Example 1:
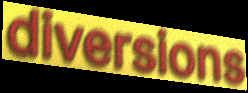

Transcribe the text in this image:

diversions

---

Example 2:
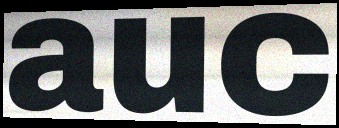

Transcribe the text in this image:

auc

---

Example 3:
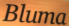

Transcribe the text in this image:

Bluma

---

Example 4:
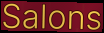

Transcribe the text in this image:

Salons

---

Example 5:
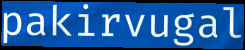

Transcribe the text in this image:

pakirvugal